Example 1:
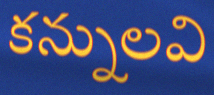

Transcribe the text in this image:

కన్నులవి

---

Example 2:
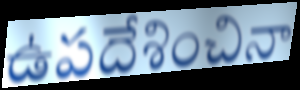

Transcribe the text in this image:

ఉపదేశించినా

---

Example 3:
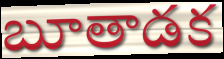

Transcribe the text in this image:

బూతాడక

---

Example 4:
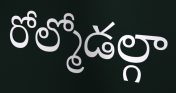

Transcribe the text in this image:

రోల్మోడల్గా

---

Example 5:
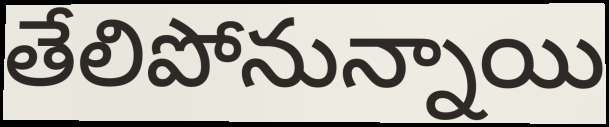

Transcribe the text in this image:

తేలిపోనున్నాయి